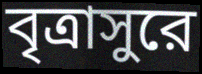
বৃত্রাসুরে